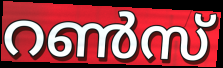
റൺസ്